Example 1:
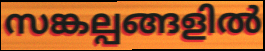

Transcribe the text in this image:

സങ്കല്പങ്ങളിൽ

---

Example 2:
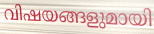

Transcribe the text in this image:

വിഷയങ്ങളുമായി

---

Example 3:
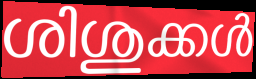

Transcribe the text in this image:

ശിശുക്കൾ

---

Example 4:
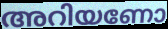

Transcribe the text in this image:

അറിയണോ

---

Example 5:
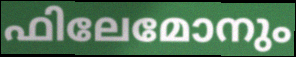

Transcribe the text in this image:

ഫിലേമോനും